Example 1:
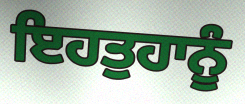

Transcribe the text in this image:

ਇਹਤੁਹਾਨੂੰ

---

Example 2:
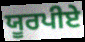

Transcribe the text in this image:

ਯੂਰਪੀਏ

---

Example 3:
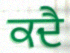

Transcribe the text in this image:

ਕਦੈ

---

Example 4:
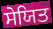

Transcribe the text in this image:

ਸੇਯਿਤ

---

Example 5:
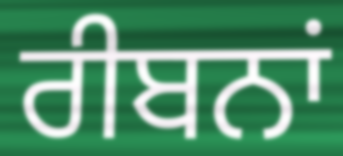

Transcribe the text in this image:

ਰੀਬਨਾਂ